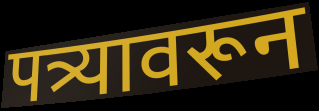
पत्र्यावरून